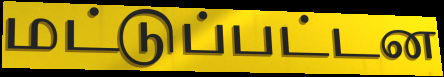
மட்டுப்பட்டன